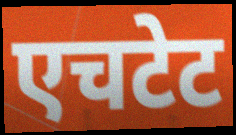
एचटेट